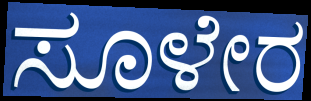
ಸೂಳೇರ